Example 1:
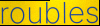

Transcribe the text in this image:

roubles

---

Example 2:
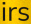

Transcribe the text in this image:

irs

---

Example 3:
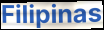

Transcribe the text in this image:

Filipinas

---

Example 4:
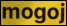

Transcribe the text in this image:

mogoj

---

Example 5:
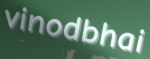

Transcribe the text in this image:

vinodbhai